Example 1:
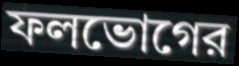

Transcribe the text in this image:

ফলভোগের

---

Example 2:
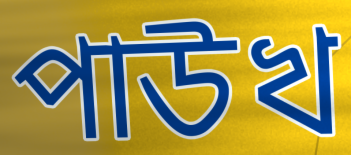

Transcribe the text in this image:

পাউখ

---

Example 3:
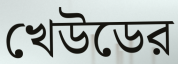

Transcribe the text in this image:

খেউডের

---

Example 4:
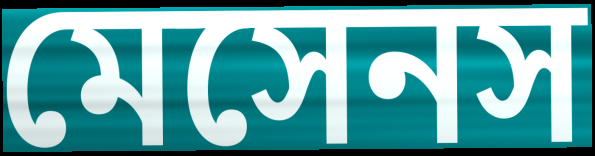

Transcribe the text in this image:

মেসেনস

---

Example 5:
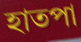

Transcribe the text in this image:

হাতপা